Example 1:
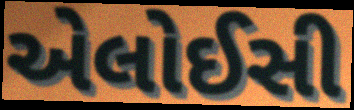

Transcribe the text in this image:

એલોઈસી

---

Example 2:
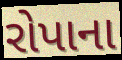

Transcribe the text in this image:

રોપાના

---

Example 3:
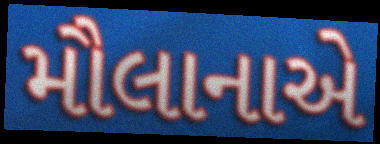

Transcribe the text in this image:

મૌલાનાએ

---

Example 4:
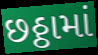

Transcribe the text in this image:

છઠ્ઠામાં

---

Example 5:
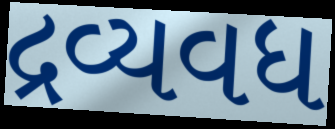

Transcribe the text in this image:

દ્રવ્યવધ